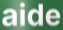
aide